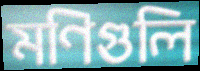
মণিগুলি